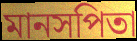
মানসপিতা